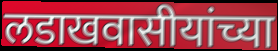
लडाखवासीयांच्या